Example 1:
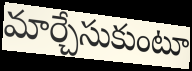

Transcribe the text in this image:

మార్చేసుకుంటూ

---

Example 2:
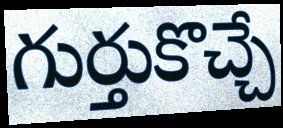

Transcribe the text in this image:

గుర్తుకొచ్చే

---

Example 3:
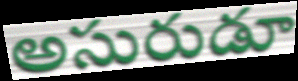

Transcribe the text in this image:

అసురుడూ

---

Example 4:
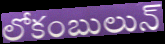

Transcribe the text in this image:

లోకంబులున్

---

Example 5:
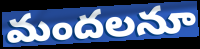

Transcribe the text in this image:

మందలనూ